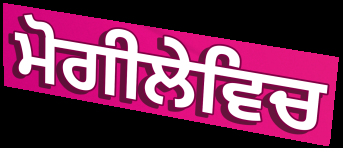
ਮੋਗੀਲੇਵਿਚ